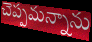
చెప్పమన్నాను